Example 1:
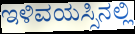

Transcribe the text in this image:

ಇಳಿವಯಸ್ಸಿನಲ್ಲಿ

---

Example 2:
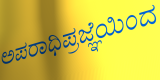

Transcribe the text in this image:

ಅಪರಾಧಿಪ್ರಜ್ಞೆಯಿಂದ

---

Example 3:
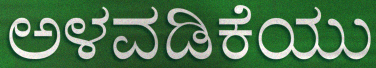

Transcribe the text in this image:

ಅಳವಡಿಕೆಯು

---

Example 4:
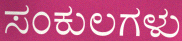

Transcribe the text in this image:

ಸಂಕುಲಗಳು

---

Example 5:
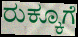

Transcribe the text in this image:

ರುಕ್ಕೂಗೆ